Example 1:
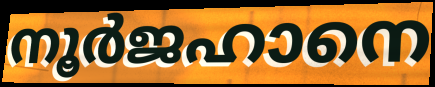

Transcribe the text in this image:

നൂർജഹാനെ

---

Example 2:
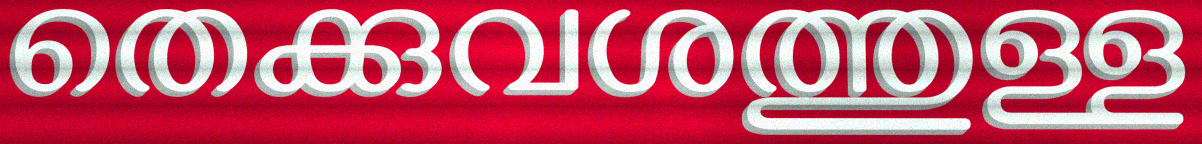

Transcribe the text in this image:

തെക്കുവശത്തുള്ള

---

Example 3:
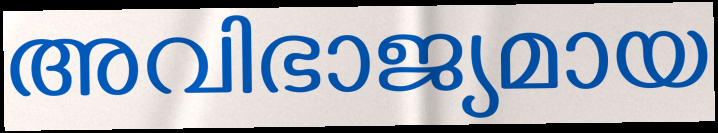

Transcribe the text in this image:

അവിഭാജ്യമായ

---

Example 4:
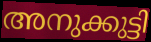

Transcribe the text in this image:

അനുക്കുട്ടി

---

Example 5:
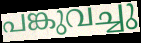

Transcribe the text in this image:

പങ്കുവച്ചു